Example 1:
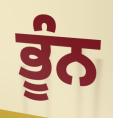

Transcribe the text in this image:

ਭੂੰਨ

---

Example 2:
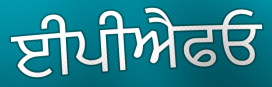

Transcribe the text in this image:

ਈਪੀਐਫਓ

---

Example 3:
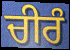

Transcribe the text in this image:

ਚੀਰੰ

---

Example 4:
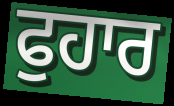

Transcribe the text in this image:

ਫੁਹਾਰ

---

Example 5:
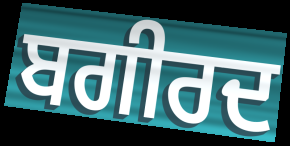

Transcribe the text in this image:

ਬਗੀਰਦ